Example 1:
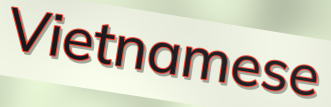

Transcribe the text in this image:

Vietnamese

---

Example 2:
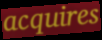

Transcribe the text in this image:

acquires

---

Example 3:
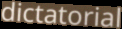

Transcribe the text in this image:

dictatorial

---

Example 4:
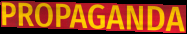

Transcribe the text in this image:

PROPAGANDA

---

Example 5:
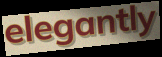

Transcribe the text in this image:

elegantly